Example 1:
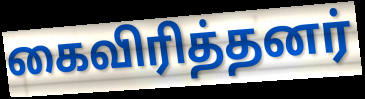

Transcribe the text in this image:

கைவிரித்தனர்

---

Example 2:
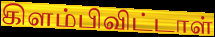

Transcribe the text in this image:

கிளம்பிவிட்டாள்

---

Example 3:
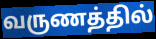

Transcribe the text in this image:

வருணத்தில்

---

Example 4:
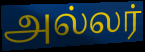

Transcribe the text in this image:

அல்லர்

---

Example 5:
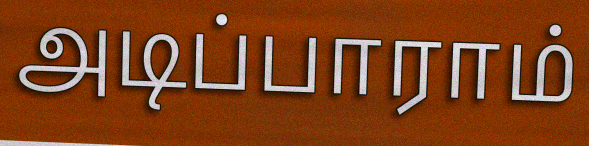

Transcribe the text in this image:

அடிப்பாராம்